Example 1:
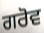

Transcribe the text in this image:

ਗਰੋਵ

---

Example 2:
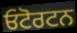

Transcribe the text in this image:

ਓਟੋਰਟਨ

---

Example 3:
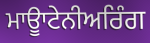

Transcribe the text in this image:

ਮਾਊਾਟੇਨੀਅਰਿੰਗ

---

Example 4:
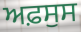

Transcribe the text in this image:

ਅਫ਼ਸੁਸ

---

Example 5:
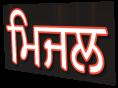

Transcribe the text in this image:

ਮਿਜਲ